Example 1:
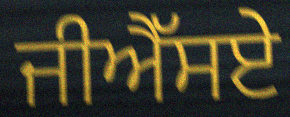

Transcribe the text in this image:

ਜੀਐੱਸਏ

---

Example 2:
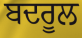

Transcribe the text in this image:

ਬਦਰੂਲ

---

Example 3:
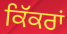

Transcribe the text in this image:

ਕਿੱਕਰਾਂ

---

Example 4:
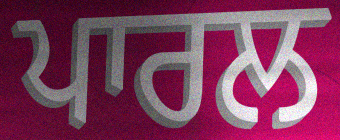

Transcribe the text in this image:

ਪਾਰਲ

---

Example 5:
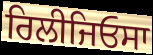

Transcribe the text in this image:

ਰਿਲੀਜਿਓਸਾ